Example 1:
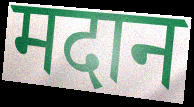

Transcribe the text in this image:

मदान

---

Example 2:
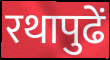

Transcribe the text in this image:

रथापुढें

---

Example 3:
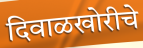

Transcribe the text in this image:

दिवाळखोरीचे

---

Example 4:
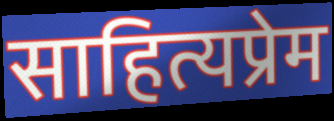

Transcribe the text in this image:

साहित्यप्रेम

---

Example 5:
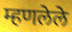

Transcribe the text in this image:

म्हणलेले